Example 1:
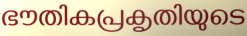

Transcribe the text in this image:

ഭൗതികപ്രകൃതിയുടെ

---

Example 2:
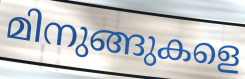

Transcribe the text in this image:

മിനുങ്ങുകളെ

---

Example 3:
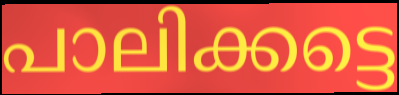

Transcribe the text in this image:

പാലിക്കട്ടെ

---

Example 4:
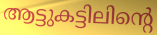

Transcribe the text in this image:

ആട്ടുകട്ടിലിന്റെ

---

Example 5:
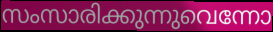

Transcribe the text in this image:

സംസാരിക്കുന്നുവെന്നോ